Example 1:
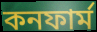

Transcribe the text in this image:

কনফার্ম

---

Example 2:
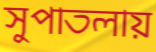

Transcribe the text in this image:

সুপাতলায়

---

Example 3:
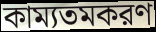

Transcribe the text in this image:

কাম্যতমকরণ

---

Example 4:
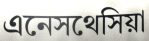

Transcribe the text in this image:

এনেসথেসিয়া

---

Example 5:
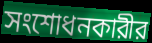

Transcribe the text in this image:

সংশোধনকারীর